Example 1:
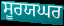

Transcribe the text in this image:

ਸੂਰਯਘਰ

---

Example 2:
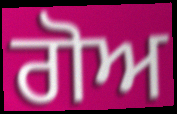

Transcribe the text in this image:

ਗੋਅ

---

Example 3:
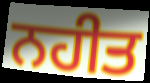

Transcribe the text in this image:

ਨਹੀਤ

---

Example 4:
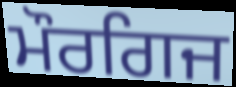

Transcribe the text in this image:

ਮੌਰਗਿਜ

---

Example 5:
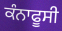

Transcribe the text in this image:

ਕੰਨਾਫੂਸੀ